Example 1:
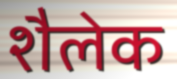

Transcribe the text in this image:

शैलेक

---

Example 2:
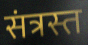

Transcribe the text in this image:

संत्रस्त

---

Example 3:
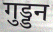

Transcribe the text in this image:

गुड्डन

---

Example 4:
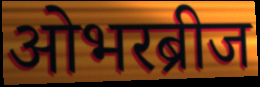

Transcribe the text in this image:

ओभरब्रीज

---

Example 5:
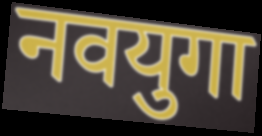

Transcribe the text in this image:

नवयुगा